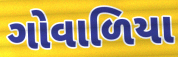
ગોવાળિયા